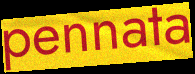
pennata